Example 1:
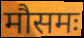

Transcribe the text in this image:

मौसमः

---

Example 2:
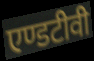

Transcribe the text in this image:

एण्डटीवी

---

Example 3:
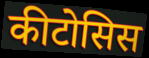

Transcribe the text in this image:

कीटोसिस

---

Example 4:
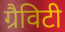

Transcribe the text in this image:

ग्रैविटी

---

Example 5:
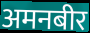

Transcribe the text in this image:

अमनबीर